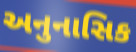
અનુનાસિક